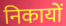
निकायों